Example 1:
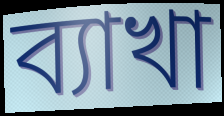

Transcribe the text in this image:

ব্যাখা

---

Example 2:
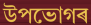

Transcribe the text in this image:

উপভোগৰ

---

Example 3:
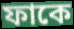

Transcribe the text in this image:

ফাকে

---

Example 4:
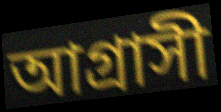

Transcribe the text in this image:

আগ্ৰাসী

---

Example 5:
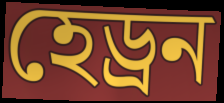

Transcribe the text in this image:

হেড্ৰন